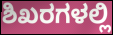
ಶಿಖರಗಳಲ್ಲಿ